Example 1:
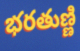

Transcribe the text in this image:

భరతుణ్ణి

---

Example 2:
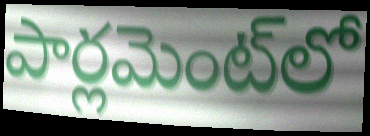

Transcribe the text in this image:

పార్లమెంట్‌లో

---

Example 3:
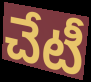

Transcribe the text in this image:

చేటీ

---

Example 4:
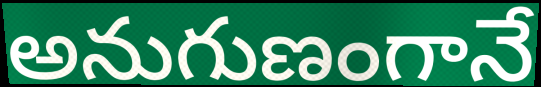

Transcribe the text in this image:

అనుగుణంగానే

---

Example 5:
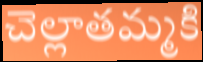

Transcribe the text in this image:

చెల్లాతమ్మకి